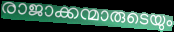
രാജാക്കന്മാരുടെയും